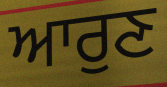
ਆਰੁਣ